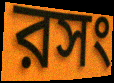
রসং